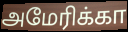
அமேரிக்கா